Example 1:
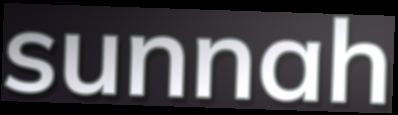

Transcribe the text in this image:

sunnah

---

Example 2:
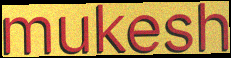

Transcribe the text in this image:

mukesh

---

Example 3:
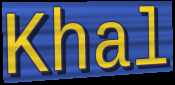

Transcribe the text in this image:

Khal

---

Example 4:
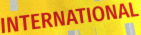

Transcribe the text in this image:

INTERNATIONAL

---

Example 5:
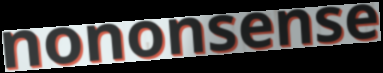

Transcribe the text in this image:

nononsense